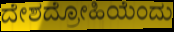
ದೇಶದ್ರೋಹಿಯೆಂದು